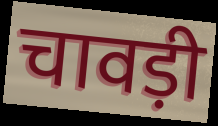
चावड़ी